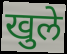
खुले